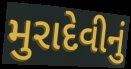
મુરાદેવીનું